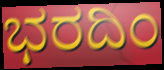
ಭರದಿಂ